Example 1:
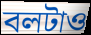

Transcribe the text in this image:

বলটাও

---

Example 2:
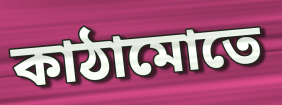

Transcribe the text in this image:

কাঠামোতে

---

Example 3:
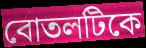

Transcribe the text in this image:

বোতলটিকে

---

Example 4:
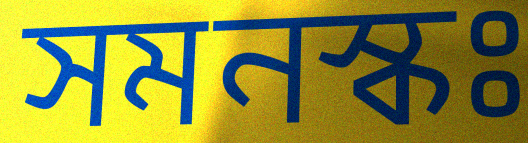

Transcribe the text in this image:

সমনস্কঃ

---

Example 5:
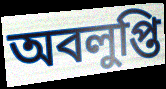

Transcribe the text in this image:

অবলুপ্তি